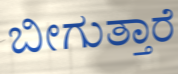
ಬೀಗುತ್ತಾರೆ